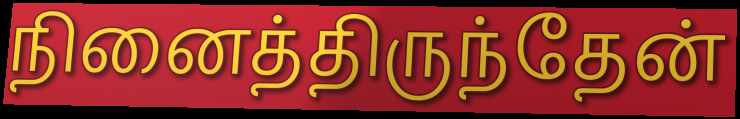
நினைத்திருந்தேன்